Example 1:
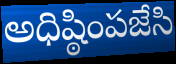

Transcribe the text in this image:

అధిష్ఠింపజేసి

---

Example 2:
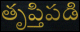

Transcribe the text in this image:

తృప్తిపడి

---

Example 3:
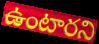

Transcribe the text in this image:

ఉంటారని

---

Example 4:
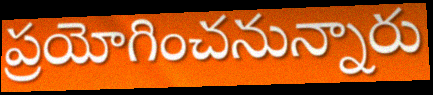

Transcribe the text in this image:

ప్రయోగించనున్నారు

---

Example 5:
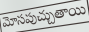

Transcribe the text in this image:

మోసపుచ్చుతాయి